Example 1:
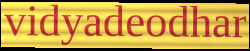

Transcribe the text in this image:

vidyadeodhar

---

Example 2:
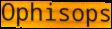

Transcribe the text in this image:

Ophisops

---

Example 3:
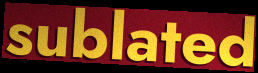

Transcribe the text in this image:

sublated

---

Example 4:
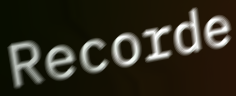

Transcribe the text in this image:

Recorde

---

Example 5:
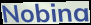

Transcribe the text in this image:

Nobina